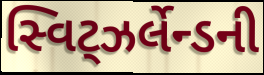
સ્વિટ્ઝર્લેન્ડની